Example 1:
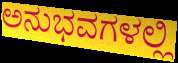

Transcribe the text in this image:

ಅನುಭವಗಳಲ್ಲಿ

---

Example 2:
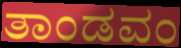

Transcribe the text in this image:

ತಾಂಡವಂ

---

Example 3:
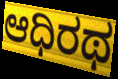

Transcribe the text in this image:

ಆಧಿರಥ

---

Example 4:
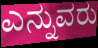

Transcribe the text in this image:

ಎನ್ನುವರು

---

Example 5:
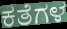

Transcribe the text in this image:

ಕತೆಗಳ